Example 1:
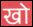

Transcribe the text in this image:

खो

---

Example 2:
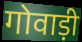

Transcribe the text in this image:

गोवाड़ी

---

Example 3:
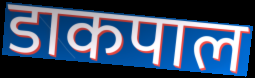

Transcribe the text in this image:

डाकपाल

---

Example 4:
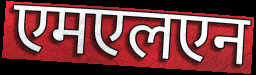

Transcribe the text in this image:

एमएलएन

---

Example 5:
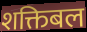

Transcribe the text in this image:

शक्तिबल